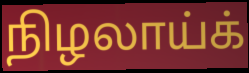
நிழலாய்க்